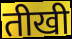
तीखी